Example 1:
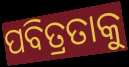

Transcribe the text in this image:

ପବିତ୍ରତାକୁ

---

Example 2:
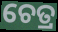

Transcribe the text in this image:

ଚେତ୍ର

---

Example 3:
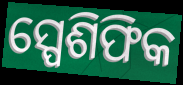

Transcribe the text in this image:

ସ୍ପେଶିଫିକ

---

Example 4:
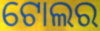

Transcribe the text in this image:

ଟୋଲର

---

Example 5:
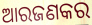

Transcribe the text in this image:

ଆରଜଣକର